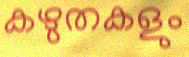
കഴുതകളും